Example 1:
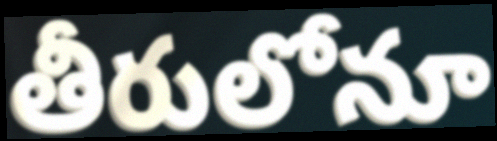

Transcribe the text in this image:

తీరులోనూ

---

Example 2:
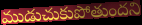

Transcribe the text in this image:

ముడుచుకుపోతుందని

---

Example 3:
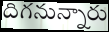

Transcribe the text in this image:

దిగనున్నారు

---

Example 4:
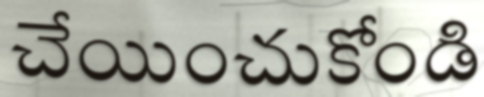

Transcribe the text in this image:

చేయించుకోండి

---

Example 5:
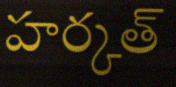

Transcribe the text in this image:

హర్కత్